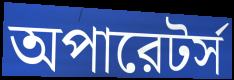
অপারেটর্স